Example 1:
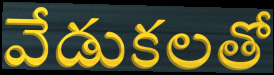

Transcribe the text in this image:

వేడుకలతో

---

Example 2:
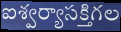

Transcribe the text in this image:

ఐశ్వర్యాసక్తిగల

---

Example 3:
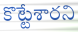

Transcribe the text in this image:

కొట్టేశారని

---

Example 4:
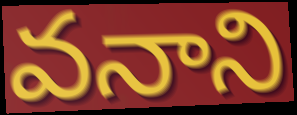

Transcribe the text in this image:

వనాని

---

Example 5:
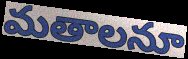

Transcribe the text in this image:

మతాలనూ